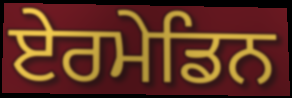
ਏਰਮੇਡਿਨ